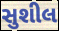
સુશીલ